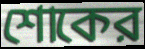
শোকের